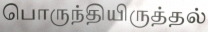
பொருந்தியிருத்தல்